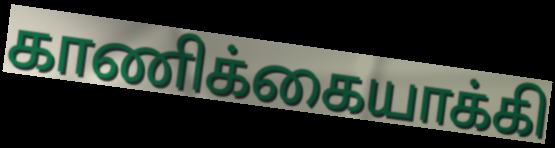
காணிக்கையாக்கி